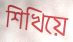
শিখিয়ে